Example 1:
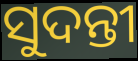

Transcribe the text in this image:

ସୁଦନ୍ତୀ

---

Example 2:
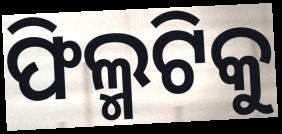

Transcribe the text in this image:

ଫିଲ୍ମଟିକୁ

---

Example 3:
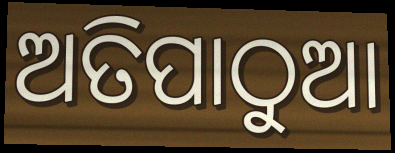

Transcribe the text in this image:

ଅତିପାଠୁଆ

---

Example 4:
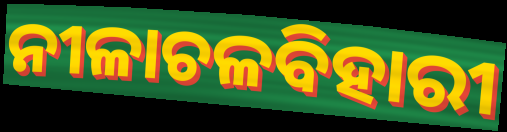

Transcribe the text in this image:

ନୀଳାଚଳବିହାରୀ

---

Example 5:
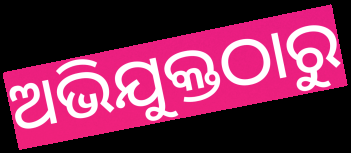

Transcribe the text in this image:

ଅଭିଯୁକ୍ତଠାରୁ